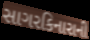
સાગરકિનારાની